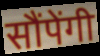
सौंपेंगी